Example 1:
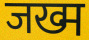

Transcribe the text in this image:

जख्म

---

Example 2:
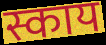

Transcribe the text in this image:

स्काय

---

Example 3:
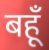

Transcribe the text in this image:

बहूँ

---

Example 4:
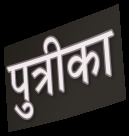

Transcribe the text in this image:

पुत्रीका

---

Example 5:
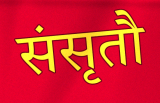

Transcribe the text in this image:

संसृतौ